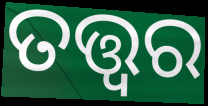
ତତ୍ତ୍ଵର